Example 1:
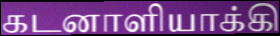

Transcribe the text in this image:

கடனாளியாக்கி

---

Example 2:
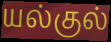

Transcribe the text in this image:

யல்குல்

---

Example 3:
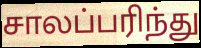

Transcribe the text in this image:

சாலப்பரிந்து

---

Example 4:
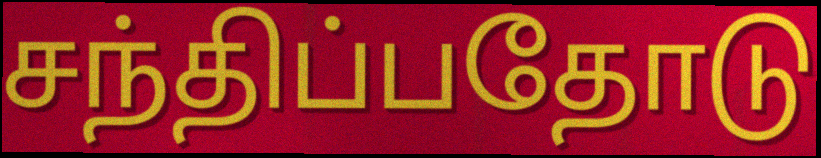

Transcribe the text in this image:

சந்திப்பதோடு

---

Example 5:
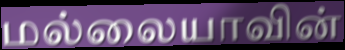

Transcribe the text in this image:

மல்லையாவின்